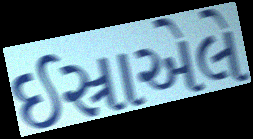
ઈસ્રાએલે